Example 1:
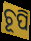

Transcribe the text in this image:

ଚୂପି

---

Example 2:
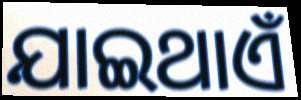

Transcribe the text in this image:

ଯାଇଥାଏଁ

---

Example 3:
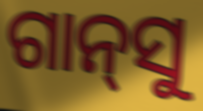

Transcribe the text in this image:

ଗାନ୍‍ସୁ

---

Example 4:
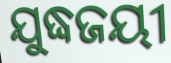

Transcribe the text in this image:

ଯୁଦ୍ଧଜୟୀ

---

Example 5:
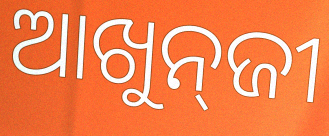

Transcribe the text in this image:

ଆଖୁନ୍‌ଜୀ